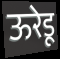
ऊरेडू